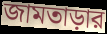
জামতাড়ার